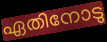
ഏതിനോടു